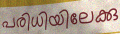
പരിധിയിലേക്കു